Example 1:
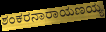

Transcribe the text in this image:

ಶಂಕರನಾರಾಯಣಯ್ಯ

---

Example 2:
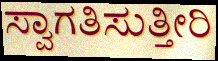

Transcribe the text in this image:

ಸ್ವಾಗತಿಸುತ್ತೀರಿ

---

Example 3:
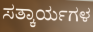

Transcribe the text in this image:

ಸತ್ಕಾರ್ಯಗಳ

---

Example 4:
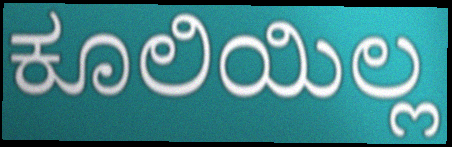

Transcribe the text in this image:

ಕೂಲಿಯಿಲ್ಲ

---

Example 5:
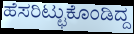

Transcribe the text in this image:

ಹೆಸರಿಟ್ಟುಕೊಂಡಿದ್ದ